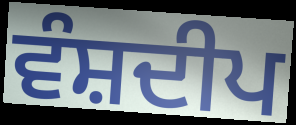
ਵੰਸ਼ਦੀਪ